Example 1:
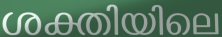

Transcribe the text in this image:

ശക്തിയിലെ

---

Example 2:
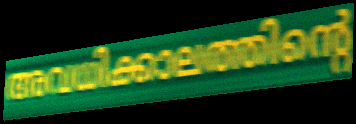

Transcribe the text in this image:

അവധിക്കാലത്തിന്റെ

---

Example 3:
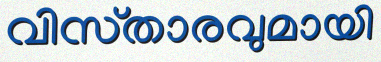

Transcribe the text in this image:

വിസ്‌താരവുമായി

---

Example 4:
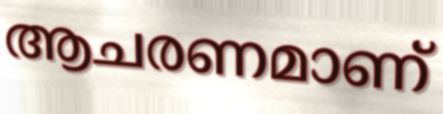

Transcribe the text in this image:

ആചരണമാണ്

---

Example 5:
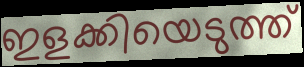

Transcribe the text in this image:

ഇളക്കിയെടുത്ത്